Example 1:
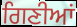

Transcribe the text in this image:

ਗਿਣੀਆਂ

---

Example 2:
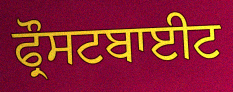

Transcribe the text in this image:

ਫ੍ਰੌਸਟਬਾਈਟ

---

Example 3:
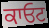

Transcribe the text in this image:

ਕਾਓਟ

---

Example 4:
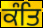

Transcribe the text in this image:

ਕੰਤਿ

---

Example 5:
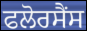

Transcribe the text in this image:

ਫਲੋਰਸੈਂਸ